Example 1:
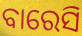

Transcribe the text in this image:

ବାରେସି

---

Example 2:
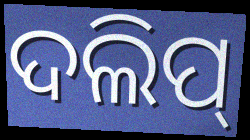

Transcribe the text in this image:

ଦଲିପ୍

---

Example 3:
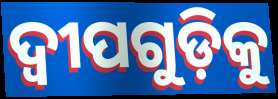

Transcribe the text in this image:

ଦ୍ୱୀପଗୁଡ଼ିକୁ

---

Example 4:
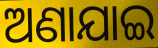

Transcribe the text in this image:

ଅଣାଯାଇ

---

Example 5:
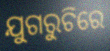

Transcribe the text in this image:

ଯୁଗରୁଚିରେ